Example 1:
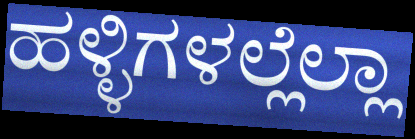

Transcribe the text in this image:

ಹಳ್ಳಿಗಳಲ್ಲೆಲ್ಲಾ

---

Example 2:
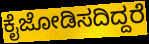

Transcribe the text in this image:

ಕೈಜೋಡಿಸದಿದ್ದರೆ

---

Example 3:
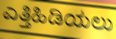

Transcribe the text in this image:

ಎತ್ತಿಹಿಡಿಯಲು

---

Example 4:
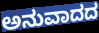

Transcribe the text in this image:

ಅನುವಾದದ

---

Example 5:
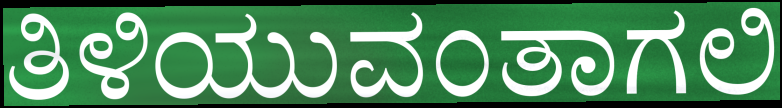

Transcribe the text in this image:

ತಿಳಿಯುವಂತಾಗಲಿ